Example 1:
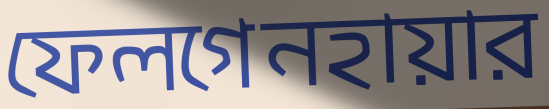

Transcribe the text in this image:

ফেলগেনহায়ার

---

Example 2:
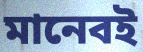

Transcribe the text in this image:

মানেবই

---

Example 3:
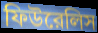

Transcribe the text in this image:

ফিউরেলিস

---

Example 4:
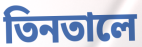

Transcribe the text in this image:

তিনতালে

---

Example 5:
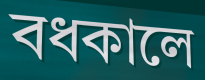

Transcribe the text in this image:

বধকালে